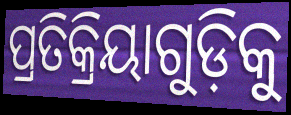
ପ୍ରତିକ୍ରିୟାଗୁଡ଼ିକୁ